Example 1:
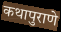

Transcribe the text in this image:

कथापुराणे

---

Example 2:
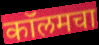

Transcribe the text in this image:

कॉलमचा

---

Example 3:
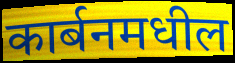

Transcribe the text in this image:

कार्बनमधील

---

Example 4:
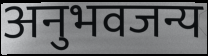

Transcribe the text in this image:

अनुभवजन्य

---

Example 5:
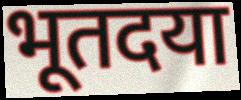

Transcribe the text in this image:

भूतदया